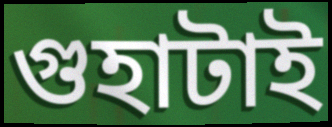
গুহাটাই